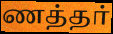
ணத்தர்